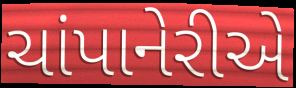
ચાંપાનેરીએ